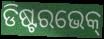
ଡିଷ୍ଟରଭେକ୍